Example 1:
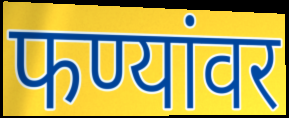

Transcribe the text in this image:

फण्यांवर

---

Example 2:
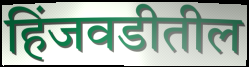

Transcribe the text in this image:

हिंजवडीतील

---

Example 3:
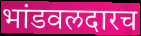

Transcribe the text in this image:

भांडवलदारच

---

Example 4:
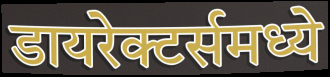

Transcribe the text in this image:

डायरेक्टर्समध्ये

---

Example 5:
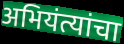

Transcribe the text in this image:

अभियंत्यांचा